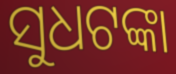
ସୁଧଟଙ୍କା